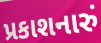
પ્રકાશનારું